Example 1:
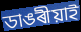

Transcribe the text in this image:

ডাঙৰীয়াই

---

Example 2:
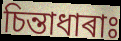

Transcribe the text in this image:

চিন্তাধাৰাঃ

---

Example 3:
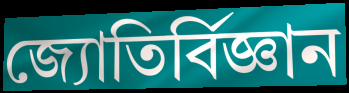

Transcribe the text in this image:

জ্যোতিৰ্বিজ্ঞান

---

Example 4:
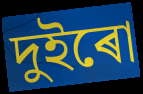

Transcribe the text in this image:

দুইৰো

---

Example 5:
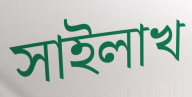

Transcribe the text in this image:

সাইলাখ